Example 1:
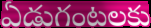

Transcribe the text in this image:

ఏడుగంటలకు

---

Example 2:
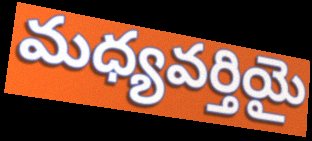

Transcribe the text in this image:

మధ్యవర్తియై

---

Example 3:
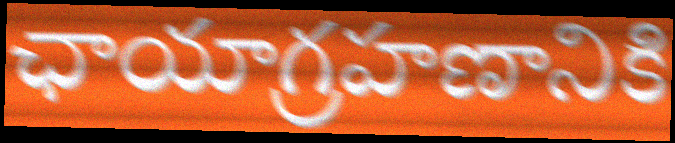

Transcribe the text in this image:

ఛాయాగ్రహణానికి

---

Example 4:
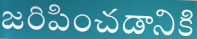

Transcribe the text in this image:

జరిపించడానికి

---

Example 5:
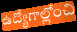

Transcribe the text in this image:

ఉద్యోగాల్లోంచి